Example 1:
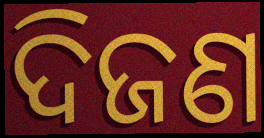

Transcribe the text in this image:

ଦିଜଣ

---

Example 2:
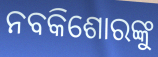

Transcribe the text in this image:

ନବକିଶୋରଙ୍କୁ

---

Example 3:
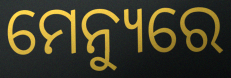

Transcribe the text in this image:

ମେନ୍ୟୁରେ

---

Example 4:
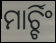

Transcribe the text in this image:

ମାର୍ଚ୍ଚିଂ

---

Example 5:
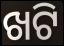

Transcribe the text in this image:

ଖଟି